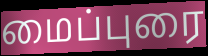
மைப்புரை